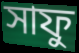
সাফু